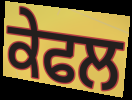
ਕੇਫਲ